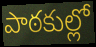
పాఠకుల్లో